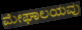
ಮೇಘಾಲಯವು